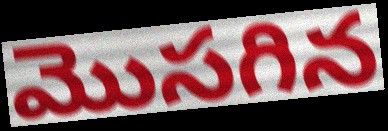
మొసగిన